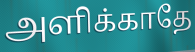
அளிக்காதே